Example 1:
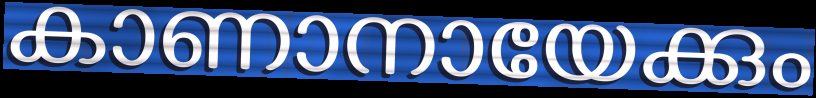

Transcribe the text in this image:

കാണാനായേക്കും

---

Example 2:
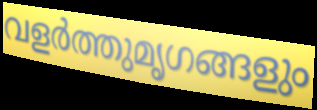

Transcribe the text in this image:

വളർത്തുമൃഗങ്ങളും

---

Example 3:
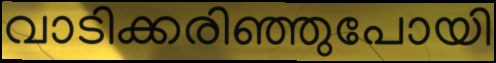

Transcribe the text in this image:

വാടിക്കരിഞ്ഞുപോയി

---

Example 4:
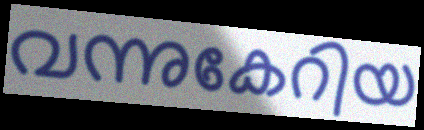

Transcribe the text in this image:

വന്നുകേറിയ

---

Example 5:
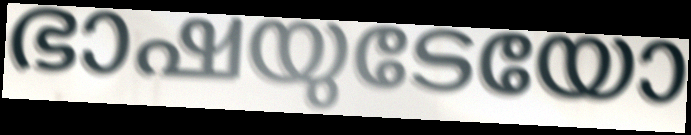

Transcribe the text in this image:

ഭാഷയുടേയോ